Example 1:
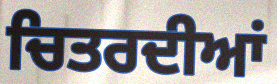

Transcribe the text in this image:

ਚਿਤਰਦੀਆਂ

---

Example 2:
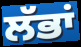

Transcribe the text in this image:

ਲੱਭਾਂ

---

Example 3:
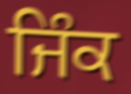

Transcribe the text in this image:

ਜਿੰਕ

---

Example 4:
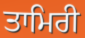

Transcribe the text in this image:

ਤਾਮਿਰੀ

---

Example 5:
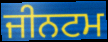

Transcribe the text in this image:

ਜੀਨਟਮ